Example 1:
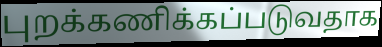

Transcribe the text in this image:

புறக்கணிக்கப்படுவதாக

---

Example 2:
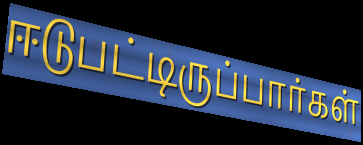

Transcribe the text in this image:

ஈடுபட்டிருப்பார்கள்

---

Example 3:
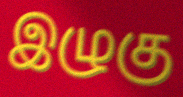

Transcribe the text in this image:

இழுகு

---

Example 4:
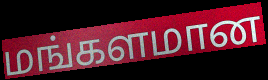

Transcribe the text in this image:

மங்களமான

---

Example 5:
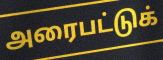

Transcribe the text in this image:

அரைபட்டுக்